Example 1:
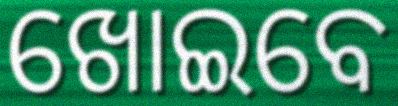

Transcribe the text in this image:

ଖୋଇବେ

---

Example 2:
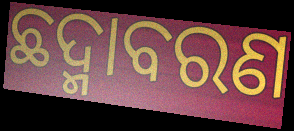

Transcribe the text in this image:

ଛଦ୍ମାବରଣ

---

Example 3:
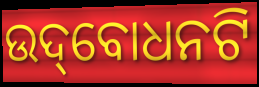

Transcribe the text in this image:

ଉଦ୍‌ବୋଧନଟି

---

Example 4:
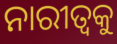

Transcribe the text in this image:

ନାରୀତ୍ୱକୁ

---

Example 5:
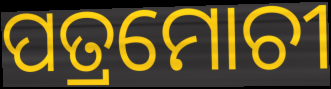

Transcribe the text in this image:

ପତ୍ରମୋଚୀ